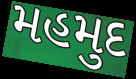
મહમુદ